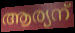
ആര്യന്